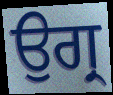
ਉਗ੍ਰ